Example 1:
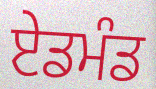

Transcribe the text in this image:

ਏਡਮੰਡ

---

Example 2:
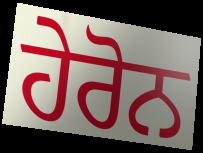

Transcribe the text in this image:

ਹੇਰੋਨ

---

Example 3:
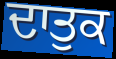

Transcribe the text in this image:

ਦਾਤੁਕ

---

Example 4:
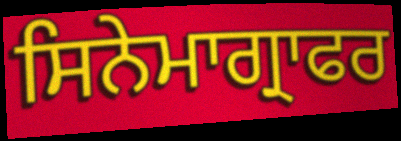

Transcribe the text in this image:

ਸਿਨੇਮਾਗ੍ਰਾਫਰ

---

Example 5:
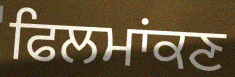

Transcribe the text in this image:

ਫਿਲਮਾਂਕਣ